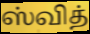
ஸ்வித்